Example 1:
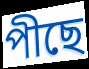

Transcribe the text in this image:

পীছে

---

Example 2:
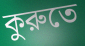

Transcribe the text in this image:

কুরুতে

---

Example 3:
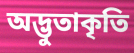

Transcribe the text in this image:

অদ্ভুতাকৃতি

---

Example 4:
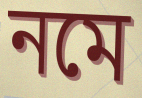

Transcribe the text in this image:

নমে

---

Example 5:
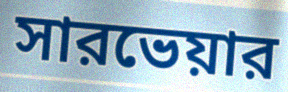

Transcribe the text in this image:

সারভেয়ার